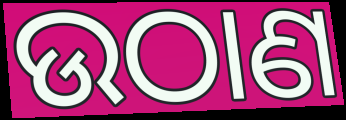
ଉଠାଣ